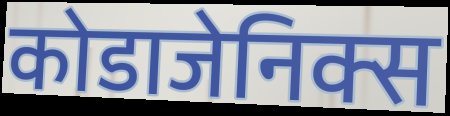
कोडाजेनिक्स